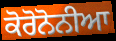
ਕੋਰੋਨੋਨੀਆ